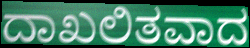
ದಾಖಲಿತವಾದ